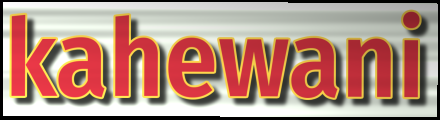
kahewani